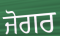
ਜੋਗਰ